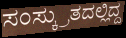
ಸಂಸ್ಕ್ರುತದಲ್ಲಿದ್ದ